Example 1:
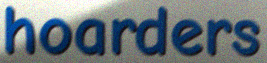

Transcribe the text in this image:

hoarders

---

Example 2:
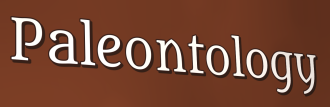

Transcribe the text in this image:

Paleontology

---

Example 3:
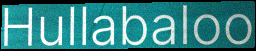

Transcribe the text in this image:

Hullabaloo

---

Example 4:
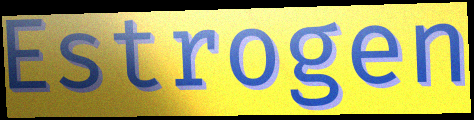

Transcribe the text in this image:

Estrogen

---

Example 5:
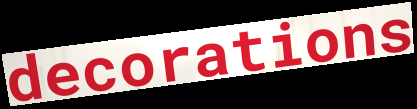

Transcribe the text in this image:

decorations